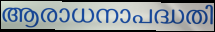
ആരാധനാപദ്ധതി